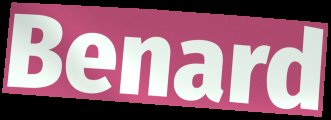
Benard